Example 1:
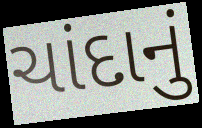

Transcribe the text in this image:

ચાંદાનું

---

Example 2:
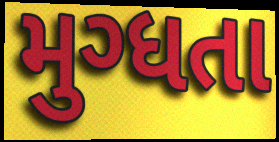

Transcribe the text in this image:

મુગ્ધતા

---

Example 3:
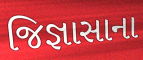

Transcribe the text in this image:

જિજ્ઞાસાના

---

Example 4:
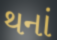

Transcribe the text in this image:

થનાં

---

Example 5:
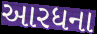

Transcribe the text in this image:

આરધના